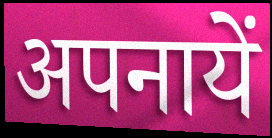
अपनायें